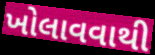
ખોલાવવાથી